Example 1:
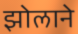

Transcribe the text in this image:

झोलाने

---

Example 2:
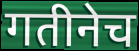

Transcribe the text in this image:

गतीनेच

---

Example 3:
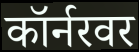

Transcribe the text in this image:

कॉर्नरवर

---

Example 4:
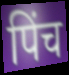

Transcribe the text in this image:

पिंच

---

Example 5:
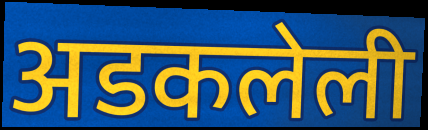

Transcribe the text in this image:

अडकलेली